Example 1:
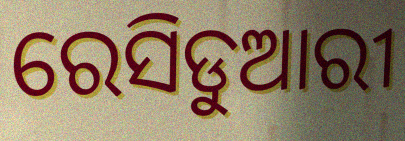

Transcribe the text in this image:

ରେସିଡୁଆରୀ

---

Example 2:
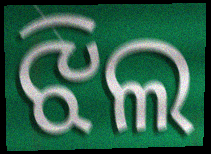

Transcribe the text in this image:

ଝିଲ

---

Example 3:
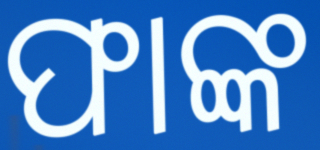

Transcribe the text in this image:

ଫାଙ୍କ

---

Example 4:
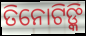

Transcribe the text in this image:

ତିନୋଟିଙ୍କି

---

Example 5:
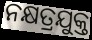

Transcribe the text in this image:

ନକ୍ଷତ୍ରଯୁକ୍ତ